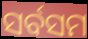
ସର୍ବସମ